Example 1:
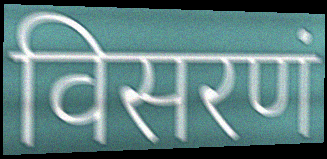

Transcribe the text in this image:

विसरणं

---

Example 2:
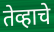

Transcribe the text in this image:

तेव्हाचे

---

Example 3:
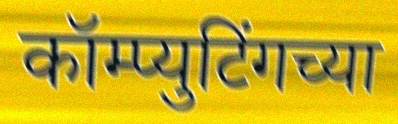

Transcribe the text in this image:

कॉम्प्युटिंगच्या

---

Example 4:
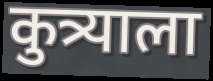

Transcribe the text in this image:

कुत्र्याला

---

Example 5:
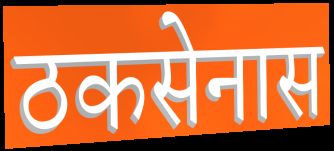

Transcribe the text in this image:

ठकसेनास